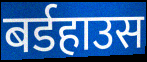
बर्डहाउस